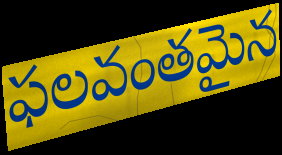
ఫలవంతమైన